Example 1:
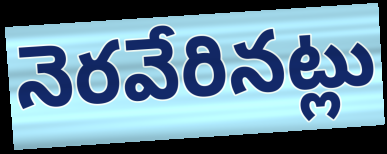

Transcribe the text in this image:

నెరవేరినట్లు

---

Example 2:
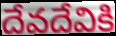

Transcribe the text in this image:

దేవదేవికి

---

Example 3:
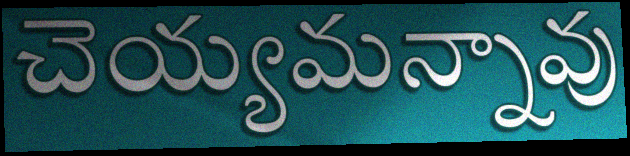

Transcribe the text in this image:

చెయ్యమన్నావు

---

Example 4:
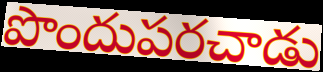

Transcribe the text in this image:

పొందుపరచాడు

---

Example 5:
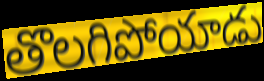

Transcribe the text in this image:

తొలగిపోయాడు